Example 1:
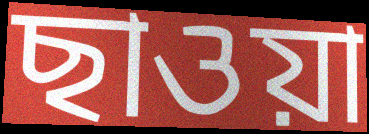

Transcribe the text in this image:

ছাওয়া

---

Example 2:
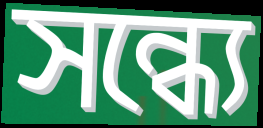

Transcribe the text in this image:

সন্ধ্যে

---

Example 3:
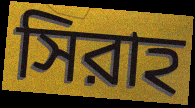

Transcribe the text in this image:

সিরাহ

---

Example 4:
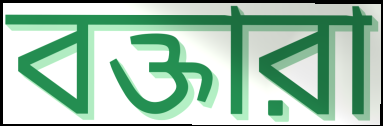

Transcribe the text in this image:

বক্তারা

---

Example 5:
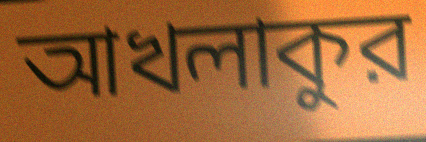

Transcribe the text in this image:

আখলাকুর